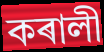
কৰালী